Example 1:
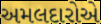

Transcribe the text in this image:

અમલદારોએ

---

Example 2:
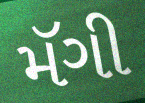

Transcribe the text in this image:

મૅગી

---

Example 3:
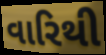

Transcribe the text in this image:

વારિથી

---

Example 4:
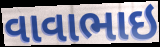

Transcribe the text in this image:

વાવાભાઇ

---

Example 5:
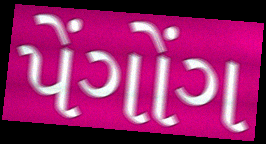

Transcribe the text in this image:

પેંગોંગ